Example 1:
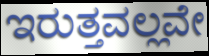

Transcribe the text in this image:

ಇರುತ್ತವಲ್ಲವೇ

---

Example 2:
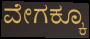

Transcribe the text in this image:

ವೇಗಕ್ಕೂ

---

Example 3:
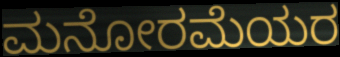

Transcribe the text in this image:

ಮನೋರಮೆಯರ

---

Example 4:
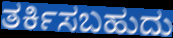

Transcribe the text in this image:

ತರ್ಕಿಸಬಹುದು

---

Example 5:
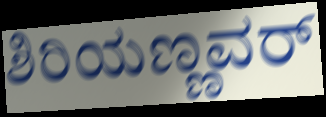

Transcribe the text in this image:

ಶಿರಿಯಣ್ಣವರ್